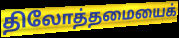
திலோத்தமையைக்